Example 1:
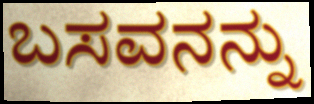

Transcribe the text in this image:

ಬಸವನನ್ನು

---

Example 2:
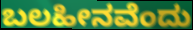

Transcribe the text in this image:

ಬಲಹೀನವೆಂದು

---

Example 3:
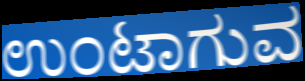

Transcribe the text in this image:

ಉಂಟಾಗುವ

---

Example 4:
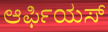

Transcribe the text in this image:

ಆರ್ಫಿಯಸ್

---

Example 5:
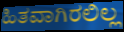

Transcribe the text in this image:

ಹಿತವಾಗಿರಲಿಲ್ಲ